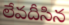
లేవదీసిన